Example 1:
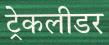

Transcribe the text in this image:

ट्रेकलीडर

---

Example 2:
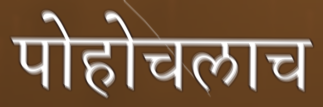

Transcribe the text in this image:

पोहोचलाच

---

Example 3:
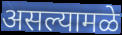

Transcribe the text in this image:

असल्यामळे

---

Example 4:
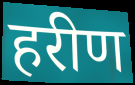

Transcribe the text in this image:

हरीण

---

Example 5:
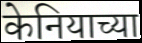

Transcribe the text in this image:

केनियाच्या